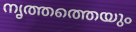
നൃത്തത്തെയും